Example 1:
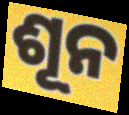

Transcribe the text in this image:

ଶୂନ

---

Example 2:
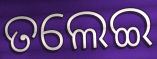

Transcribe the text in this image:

ତଲେଇ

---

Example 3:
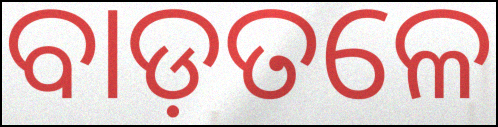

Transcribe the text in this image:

ବାଡ଼ତଳେ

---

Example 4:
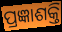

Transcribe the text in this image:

ପ୍ରଜ୍ଞାଶକ୍ତି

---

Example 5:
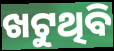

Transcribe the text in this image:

ଖଟୁଥିବି